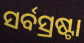
ସର୍ବସ୍ରଷ୍ଟା